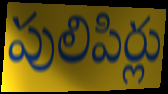
పులిపిర్లు